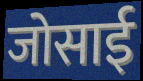
जोसाई